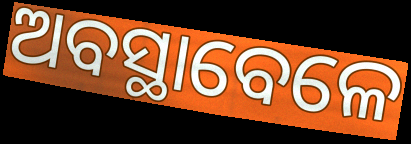
ଅବସ୍ଥାବେଳେ